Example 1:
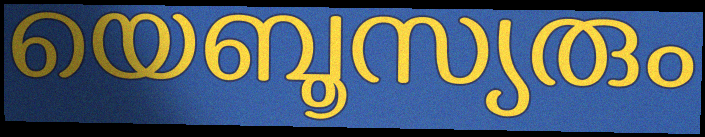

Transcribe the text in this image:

യെബൂസ്യരും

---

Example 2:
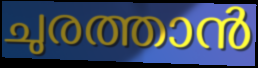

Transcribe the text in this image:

ചുരത്താൻ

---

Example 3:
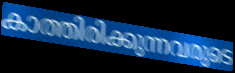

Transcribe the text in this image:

കാത്തിരിക്കുന്നവരുടെ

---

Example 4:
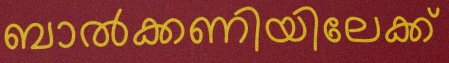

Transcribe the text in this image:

ബാൽക്കണിയിലേക്ക്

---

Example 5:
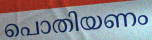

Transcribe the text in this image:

പൊതിയണം